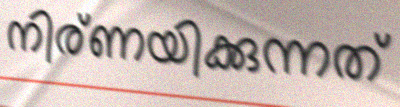
നിര്ണയിക്കുന്നത്